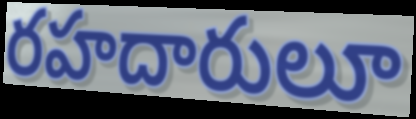
రహదారులూ